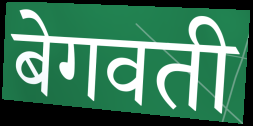
बेगवती